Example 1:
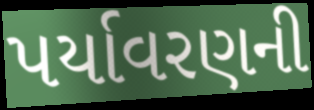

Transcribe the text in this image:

પર્યાવરણની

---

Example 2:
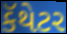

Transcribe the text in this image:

કૅથેટર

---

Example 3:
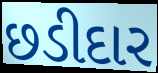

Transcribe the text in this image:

છડીદાર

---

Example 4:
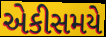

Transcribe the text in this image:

એકીસમયે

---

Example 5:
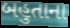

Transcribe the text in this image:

બહુતાના